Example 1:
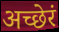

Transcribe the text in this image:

अच्छेरं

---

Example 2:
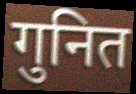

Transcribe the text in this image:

गुनित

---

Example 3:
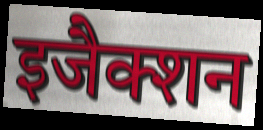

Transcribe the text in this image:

इजैक्शन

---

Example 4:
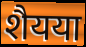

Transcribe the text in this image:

शैयया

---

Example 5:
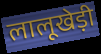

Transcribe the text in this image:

लालूखेड़ी